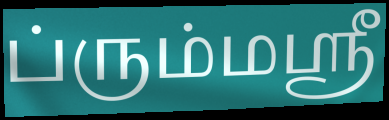
ப்ரும்மஸ்ரீ